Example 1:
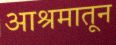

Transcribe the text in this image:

आश्रमातून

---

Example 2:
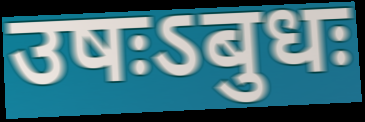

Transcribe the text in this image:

उषःऽबुधः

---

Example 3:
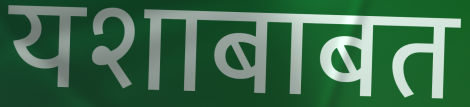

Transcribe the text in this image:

यशाबाबत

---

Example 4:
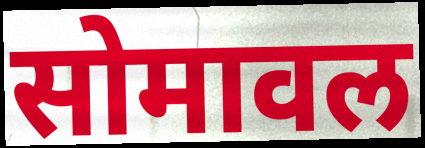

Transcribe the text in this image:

सोमावल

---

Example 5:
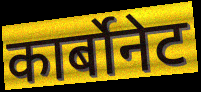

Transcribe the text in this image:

कार्बोनेट